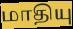
மாதியு